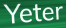
Yeter